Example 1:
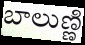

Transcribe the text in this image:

బాలుణ్ణి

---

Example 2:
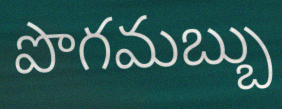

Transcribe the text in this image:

పొగమబ్బు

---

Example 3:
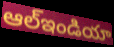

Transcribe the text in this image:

ఆల్ఇండియా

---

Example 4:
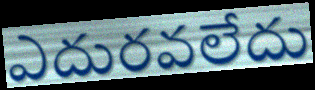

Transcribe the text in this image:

ఎదురవలేదు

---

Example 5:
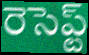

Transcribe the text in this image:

రెసెప్ట్